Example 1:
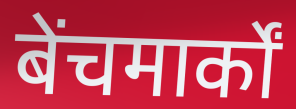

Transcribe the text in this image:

बेंचमार्कों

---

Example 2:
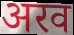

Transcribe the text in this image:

अरव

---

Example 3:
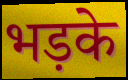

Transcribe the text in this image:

भड़के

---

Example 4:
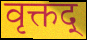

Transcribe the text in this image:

वृक्तद्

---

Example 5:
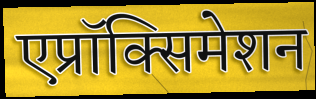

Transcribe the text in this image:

एप्रॉक्सिमेशन